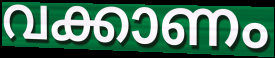
വക്കാണം